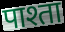
पाश्ता